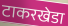
टाकरखेडा